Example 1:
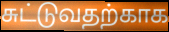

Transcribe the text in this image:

சுட்டுவதற்காக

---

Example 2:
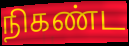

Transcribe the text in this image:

நிகண்ட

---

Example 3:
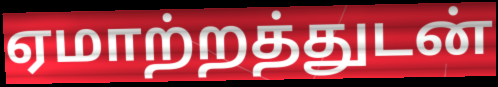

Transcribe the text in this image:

ஏமாற்றத்துடன்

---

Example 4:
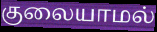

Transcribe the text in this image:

குலையாமல்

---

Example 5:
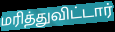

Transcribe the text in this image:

மரித்துவிட்டார்